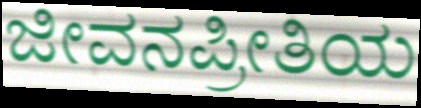
ಜೀವನಪ್ರೀತಿಯ